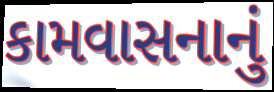
કામવાસનાનું